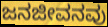
ಜನಜೀವನವು